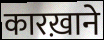
कारख़ाने